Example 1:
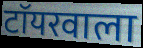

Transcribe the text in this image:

टॉयरवाला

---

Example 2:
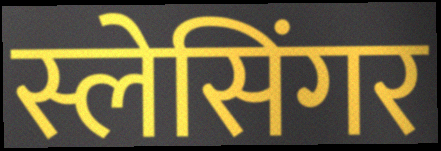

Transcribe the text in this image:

स्लेसिंगर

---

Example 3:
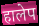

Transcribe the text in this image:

हालेप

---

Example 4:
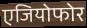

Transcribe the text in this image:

एजियोफोर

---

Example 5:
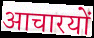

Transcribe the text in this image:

आचारयों